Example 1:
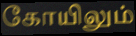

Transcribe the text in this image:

கோயிலும்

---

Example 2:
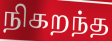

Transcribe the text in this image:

நிகறந்த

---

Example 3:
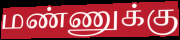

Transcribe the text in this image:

மண்ணுக்கு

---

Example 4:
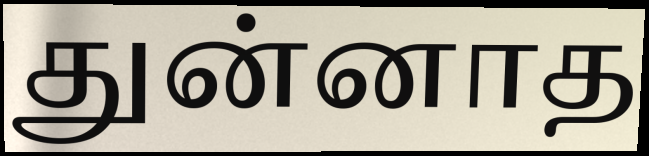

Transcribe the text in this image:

துன்னாத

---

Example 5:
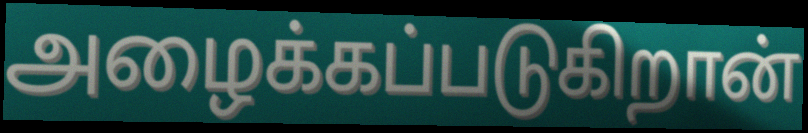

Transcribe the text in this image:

அழைக்கப்படுகிறான்